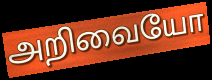
அறிவையோ